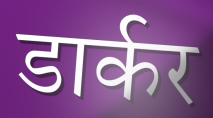
डार्कर